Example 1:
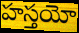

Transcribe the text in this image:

హస్తయో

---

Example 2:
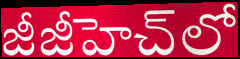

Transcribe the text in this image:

జీజీహెచ్‌లో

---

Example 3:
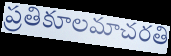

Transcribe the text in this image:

ప్రతికూలమాచరతి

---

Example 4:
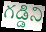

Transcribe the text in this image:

గడ్డిని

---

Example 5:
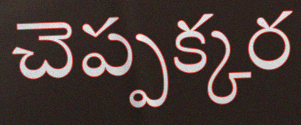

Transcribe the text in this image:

చెప్పక్కర